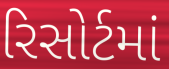
રિસોર્ટમાં